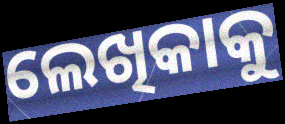
ଲେଖିକାକୁ